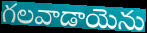
గలవాడాయెను